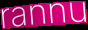
rannu